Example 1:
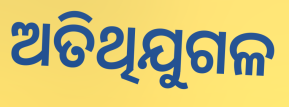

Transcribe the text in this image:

ଅତିଥିଯୁଗଳ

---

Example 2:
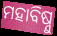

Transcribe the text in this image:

ମହାବିଷ୍ନୁ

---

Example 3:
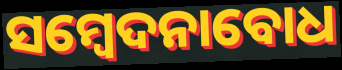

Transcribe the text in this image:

ସମ୍ବେଦନାବୋଧ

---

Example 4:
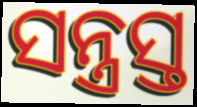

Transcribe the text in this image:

ସନ୍ତ୍ରସ୍ତ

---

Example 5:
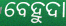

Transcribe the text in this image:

ବେହୁଦା